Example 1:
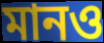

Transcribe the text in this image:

মানও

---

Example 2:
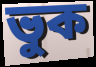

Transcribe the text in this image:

ভুক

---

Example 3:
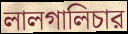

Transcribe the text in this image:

লালগালিচার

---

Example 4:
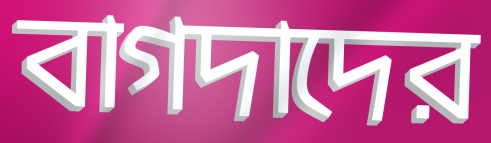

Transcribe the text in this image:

বাগদাদের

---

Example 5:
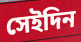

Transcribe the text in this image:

সেইদিন